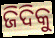
ଜିଦିକୁ